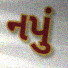
નપું